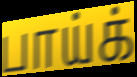
பாய்க்